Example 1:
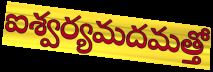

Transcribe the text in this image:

ఐశ్వర్యమదమత్తో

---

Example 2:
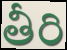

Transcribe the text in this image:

తీరి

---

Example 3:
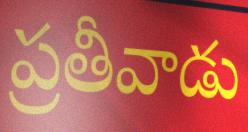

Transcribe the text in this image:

ప్రతీవాడు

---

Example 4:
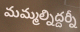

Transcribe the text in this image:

మమ్మల్నిద్దర్నీ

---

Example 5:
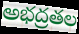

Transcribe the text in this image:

అభద్రతల